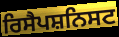
ਰਿਸੈਪਸ਼ਨਿਸਟ